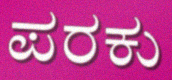
ಪರಕು